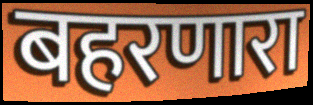
बहरणारा